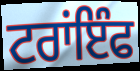
ਟਰਾਂਇੰਫ